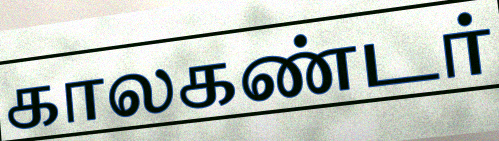
காலகண்டர்